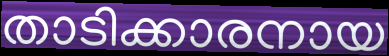
താടിക്കാരനായ